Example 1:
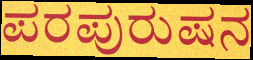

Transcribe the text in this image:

ಪರಪುರುಷನ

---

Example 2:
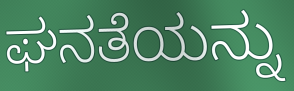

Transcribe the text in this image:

ಘನತೆಯನ್ನು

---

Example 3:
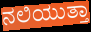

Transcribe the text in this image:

ನಲಿಯುತ್ತಾ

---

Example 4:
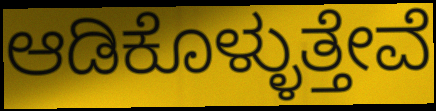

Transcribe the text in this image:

ಆಡಿಕೊಳ್ಳುತ್ತೇವೆ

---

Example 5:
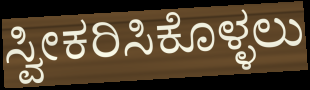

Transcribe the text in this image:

ಸ್ವೀಕರಿಸಿಕೊಳ್ಳಲು